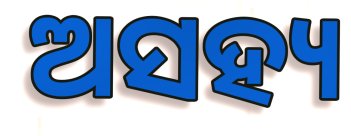
ଅସହ୍ୟ